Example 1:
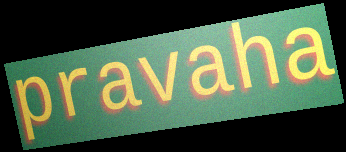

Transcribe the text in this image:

pravaha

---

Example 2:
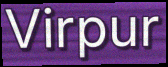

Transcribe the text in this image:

Virpur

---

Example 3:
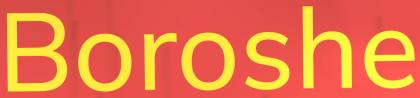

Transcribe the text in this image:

Boroshe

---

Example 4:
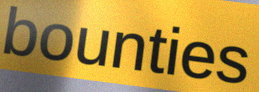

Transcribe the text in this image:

bounties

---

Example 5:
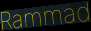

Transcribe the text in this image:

Rammad